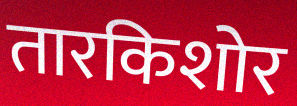
तारकिशोर